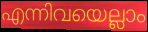
എന്നിവയെല്ലാം